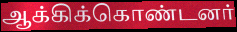
ஆக்கிக்கொண்டனர்